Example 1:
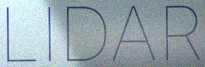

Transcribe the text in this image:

LIDAR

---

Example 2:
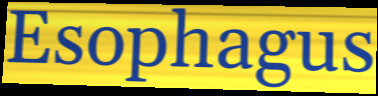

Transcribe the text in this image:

Esophagus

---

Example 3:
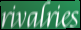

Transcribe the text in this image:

rivalries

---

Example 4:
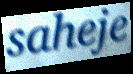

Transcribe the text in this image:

saheje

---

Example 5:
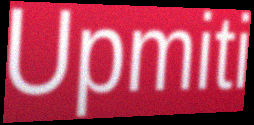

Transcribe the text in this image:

Upmiti